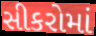
સીકરોમાં